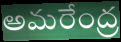
అమరేంద్ర